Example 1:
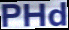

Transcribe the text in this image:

PHd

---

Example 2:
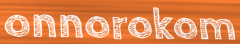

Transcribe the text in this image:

onnorokom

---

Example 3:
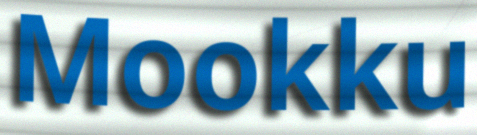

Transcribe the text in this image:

Mookku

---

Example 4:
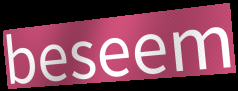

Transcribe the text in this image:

beseem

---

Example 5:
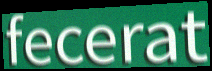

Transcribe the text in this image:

fecerat